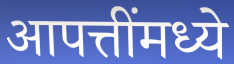
आपत्तींमध्ये